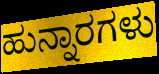
ಹುನ್ನಾರಗಳು